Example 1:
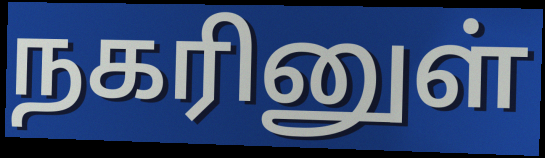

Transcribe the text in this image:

நகரினுள்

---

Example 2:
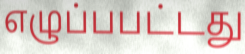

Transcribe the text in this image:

எழுப்பபட்டது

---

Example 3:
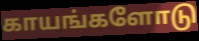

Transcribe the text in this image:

காயங்களோடு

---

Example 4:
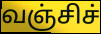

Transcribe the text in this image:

வஞ்சிச்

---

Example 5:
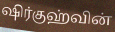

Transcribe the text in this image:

ஷிர்குஹ்வின்